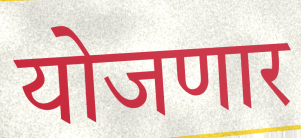
योजणार